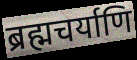
ब्रह्मचर्याणि